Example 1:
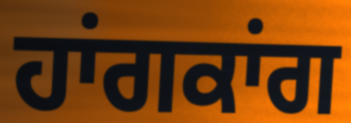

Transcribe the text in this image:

ਹਾਂਗਕਾਂਗ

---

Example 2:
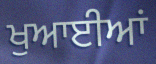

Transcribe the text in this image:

ਖੁਆਈਆਂ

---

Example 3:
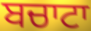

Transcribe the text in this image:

ਬਚਾਟਾ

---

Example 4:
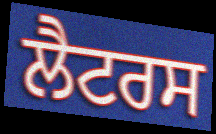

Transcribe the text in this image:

ਲੈਟਰਸ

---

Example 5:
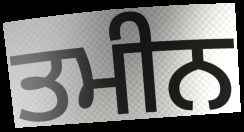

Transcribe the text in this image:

ਤਮੀਨ